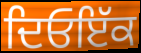
ਦਿਓਇੱਕ